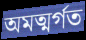
অমত্মর্গত